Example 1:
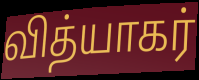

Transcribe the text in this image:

வித்யாகர்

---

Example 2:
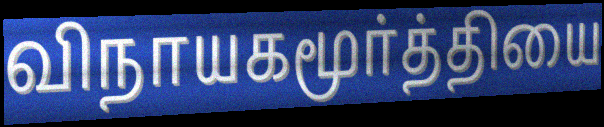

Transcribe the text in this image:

விநாயகமூர்த்தியை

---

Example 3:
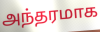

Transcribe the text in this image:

அந்தரமாக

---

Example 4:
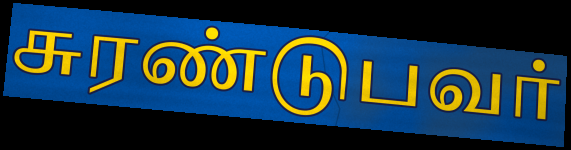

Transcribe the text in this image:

சுரண்டுபவர்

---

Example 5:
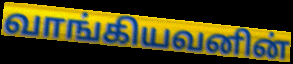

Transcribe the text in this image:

வாங்கியவனின்